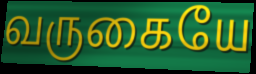
வருகையே